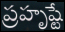
ప్రహృష్టే